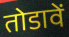
तोडावें